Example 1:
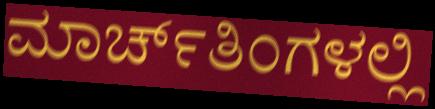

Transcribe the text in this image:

ಮಾರ್ಚ್‌ತಿಂಗಳಲ್ಲಿ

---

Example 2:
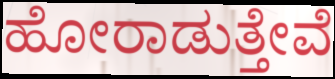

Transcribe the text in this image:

ಹೋರಾಡುತ್ತೇವೆ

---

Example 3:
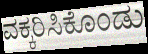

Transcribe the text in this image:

ವಕ್ಕರಿಸಿಕೊಂಡು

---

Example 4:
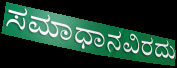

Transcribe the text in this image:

ಸಮಾಧಾನವಿರದು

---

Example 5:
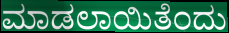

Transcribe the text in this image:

ಮಾಡಲಾಯಿತೆಂದು